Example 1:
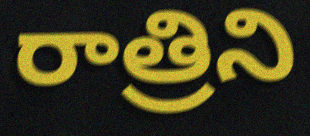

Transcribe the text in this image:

రాత్రిని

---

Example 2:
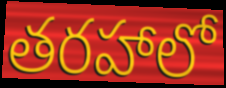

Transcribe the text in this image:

తరహాలో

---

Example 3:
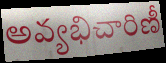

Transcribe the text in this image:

అవ్యభిచారిణీ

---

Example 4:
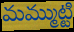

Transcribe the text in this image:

మమ్ముట్టి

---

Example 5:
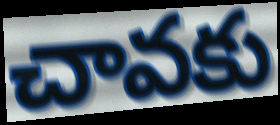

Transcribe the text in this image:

చావకు